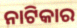
ନାଟିକାର